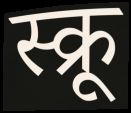
स्क्रू